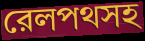
রেলপথসহ